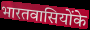
भारतवासियोंके